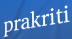
prakriti